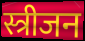
स्त्रीजन